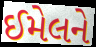
ઈમેલને